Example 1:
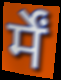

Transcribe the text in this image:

र्में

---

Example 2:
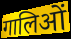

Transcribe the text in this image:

गालिओं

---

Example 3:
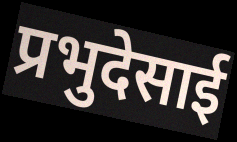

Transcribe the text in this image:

प्रभुदेसाई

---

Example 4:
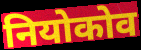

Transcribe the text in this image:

नियोकोव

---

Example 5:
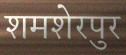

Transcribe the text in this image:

शमशेरपुर